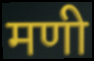
मणी